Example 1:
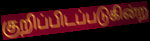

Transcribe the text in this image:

குறிப்பிடப்படுகின்ற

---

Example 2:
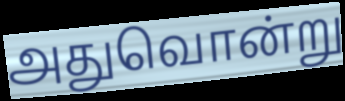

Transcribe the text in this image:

அதுவொன்று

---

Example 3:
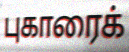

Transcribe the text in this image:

புகாரைக்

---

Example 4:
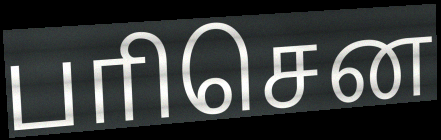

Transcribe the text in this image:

பரிசென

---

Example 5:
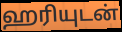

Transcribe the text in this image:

ஹரியுடன்